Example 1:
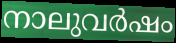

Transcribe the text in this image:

നാലുവർഷം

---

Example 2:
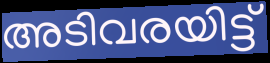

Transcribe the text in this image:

അടിവരയിട്ട്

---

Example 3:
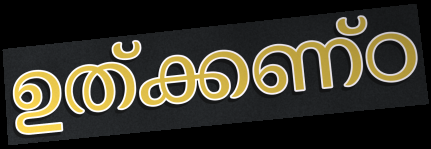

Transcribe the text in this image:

ഉത്ക്കണ്ഠ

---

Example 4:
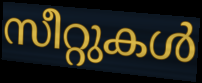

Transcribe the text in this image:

സീറ്റുകൾ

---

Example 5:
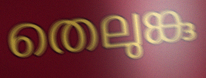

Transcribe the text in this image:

തെലുങ്കു